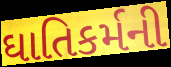
ઘાતિકર્મની